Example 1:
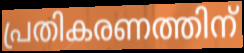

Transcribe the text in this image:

പ്രതികരണത്തിന്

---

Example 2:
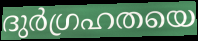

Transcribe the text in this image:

ദുർഗ്രഹതയെ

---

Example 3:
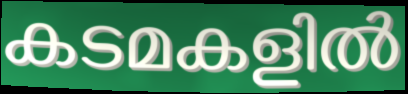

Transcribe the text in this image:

കടമകളിൽ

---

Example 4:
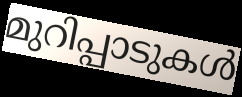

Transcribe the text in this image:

മുറിപ്പാടുകൾ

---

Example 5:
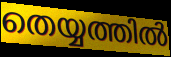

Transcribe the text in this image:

തെയ്യത്തിൽ